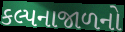
કલ્પનાજાળનો